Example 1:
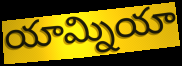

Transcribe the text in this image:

యామ్నియా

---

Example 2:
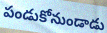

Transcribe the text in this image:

పండుకోనుండాడు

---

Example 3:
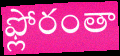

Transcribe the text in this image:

ఫ్లోరంతా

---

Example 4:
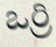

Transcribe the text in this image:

ఒర్రి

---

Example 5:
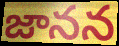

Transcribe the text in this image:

జానన